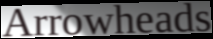
Arrowheads